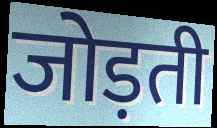
जोड़ती